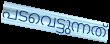
പടവെട്ടുന്നത്